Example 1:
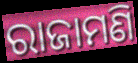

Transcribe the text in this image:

ରାଜାମଣି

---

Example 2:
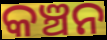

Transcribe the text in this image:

କଞ୍ଚନ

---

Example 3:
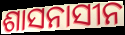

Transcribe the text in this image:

ଶାସନାସୀନ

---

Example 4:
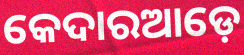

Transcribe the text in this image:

କେଦାରଆଡ଼େ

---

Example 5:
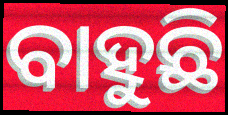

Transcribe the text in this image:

ବାହୁଛି